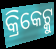
କ୍ରିକେଟ୍କୁ